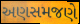
અણસમજણે